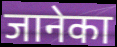
जानेका